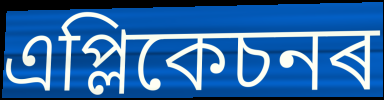
এপ্লিকেচনৰ